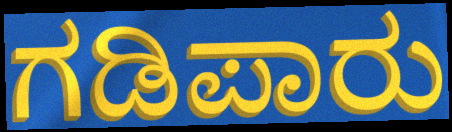
ಗಡಿಪಾರು